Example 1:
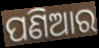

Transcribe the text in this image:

ପଣିଆର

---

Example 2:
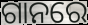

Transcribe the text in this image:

ଗାନରେ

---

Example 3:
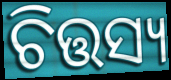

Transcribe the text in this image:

ଚିତ୍ତସ୍ୟ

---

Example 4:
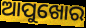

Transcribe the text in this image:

ଆପୁଖୋର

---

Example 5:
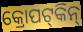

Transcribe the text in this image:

କ୍ରୋପଟ୍‍କିନ୍